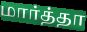
மார்த்தா